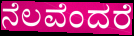
ನೆಲವೆಂದರೆ